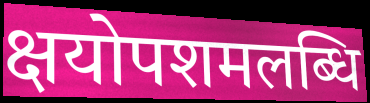
क्षयोपशमलब्धि